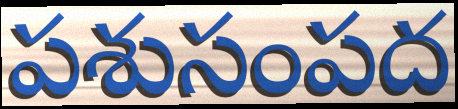
పశుసంపద